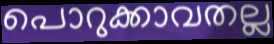
പൊറുക്കാവതല്ല